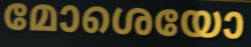
മോശെയോ